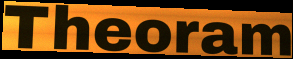
Theoram